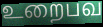
உறைபவ